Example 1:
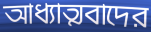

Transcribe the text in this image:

আধ্যাত্মবাদের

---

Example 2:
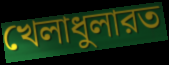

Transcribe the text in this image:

খেলাধুলারত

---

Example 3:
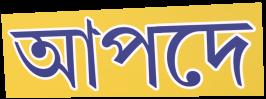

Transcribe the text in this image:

আপদে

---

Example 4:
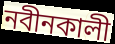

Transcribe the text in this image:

নবীনকালী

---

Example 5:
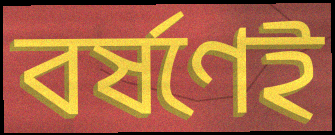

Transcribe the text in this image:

বর্ষণেই